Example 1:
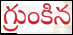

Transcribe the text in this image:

గ్రుంకిన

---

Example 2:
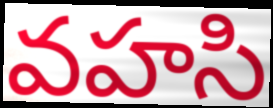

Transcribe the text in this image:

వహసి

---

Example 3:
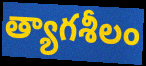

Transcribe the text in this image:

త్యాగశీలం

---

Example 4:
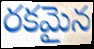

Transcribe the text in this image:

రకమైన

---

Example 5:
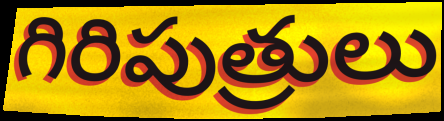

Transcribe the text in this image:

గిరిపుత్రులు